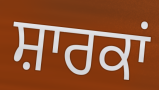
ਸ਼ਾਰਕਾਂ